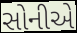
સોનીએ